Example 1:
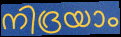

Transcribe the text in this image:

നിദ്രയാം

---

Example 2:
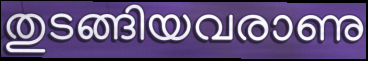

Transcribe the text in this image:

തുടങ്ങിയവരാണു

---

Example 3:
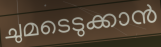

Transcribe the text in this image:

ചുമടെടുക്കാൻ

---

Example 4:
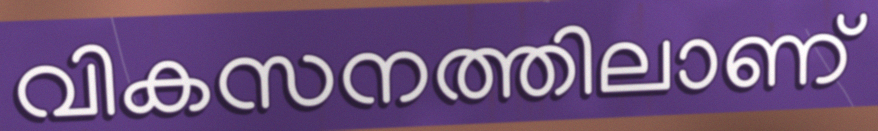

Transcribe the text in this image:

വികസനത്തിലാണ്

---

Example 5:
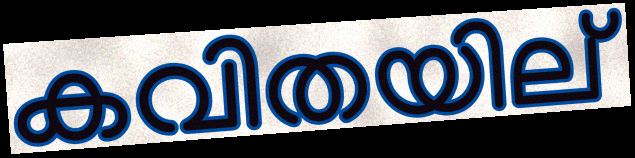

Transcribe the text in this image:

കവിതയില്